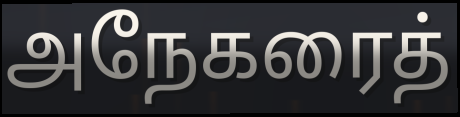
அநேகரைத்